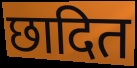
छादित